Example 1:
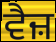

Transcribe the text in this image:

ਵੈਜ਼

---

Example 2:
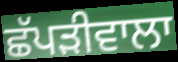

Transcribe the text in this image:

ਛੱਪੜੀਵਾਲਾ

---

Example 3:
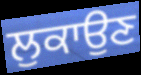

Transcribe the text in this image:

ਲੁਕਾਉਣ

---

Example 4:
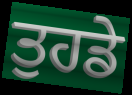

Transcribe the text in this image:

ਤੁਹਡੇ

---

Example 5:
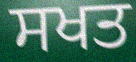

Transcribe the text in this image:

ਸਖਤ